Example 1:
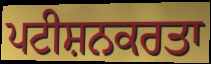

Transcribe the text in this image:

ਪਟੀਸ਼ਨਕਰਤਾ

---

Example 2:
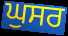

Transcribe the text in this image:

ਘੁਸਰ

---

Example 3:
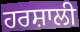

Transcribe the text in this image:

ਹਰਸ਼ਾਲੀ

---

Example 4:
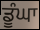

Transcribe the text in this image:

ਡੂੰਘਾ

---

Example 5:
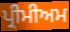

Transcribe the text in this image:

ਪ੍ਰੀਮੀਅਮ